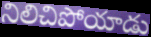
నిలిచిపోయాడు